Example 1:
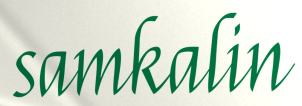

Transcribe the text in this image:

samkalin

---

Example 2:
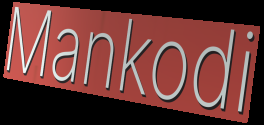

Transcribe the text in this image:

Mankodi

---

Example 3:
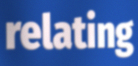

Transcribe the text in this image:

relating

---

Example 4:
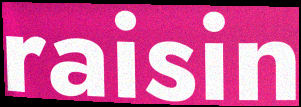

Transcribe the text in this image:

raisin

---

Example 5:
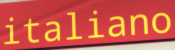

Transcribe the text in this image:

italiano